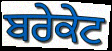
ਬਰੇਕੇਟ